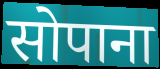
सोपाना